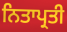
ਨਿਤਾਪ੍ਰਤੀ